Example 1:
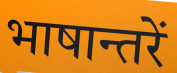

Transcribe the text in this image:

भाषान्तरें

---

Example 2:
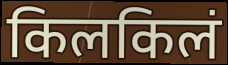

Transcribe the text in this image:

किलकिलं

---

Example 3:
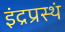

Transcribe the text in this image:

इंद्रप्रस्थं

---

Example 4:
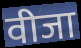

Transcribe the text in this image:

वीजा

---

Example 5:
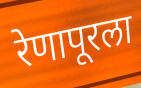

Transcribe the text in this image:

रेणापूरला